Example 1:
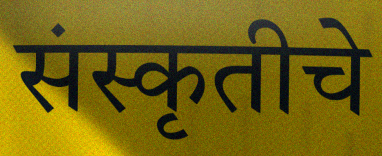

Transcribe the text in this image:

संस्कृतीचे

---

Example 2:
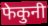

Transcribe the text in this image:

फेकुनी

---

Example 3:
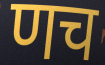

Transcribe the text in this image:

णच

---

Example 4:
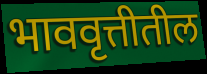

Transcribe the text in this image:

भाववृत्तीतील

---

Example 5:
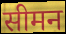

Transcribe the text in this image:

सीमन